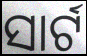
ସାର୍ଟ